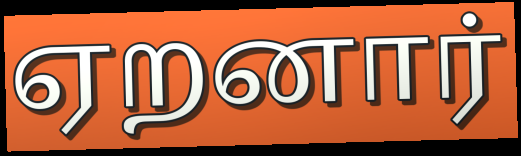
ஏறனார்